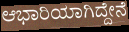
ಆಭಾರಿಯಾಗಿದ್ದೇನೆ